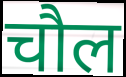
चौल